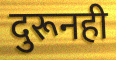
दुरूनही